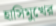
হাসিমুখের